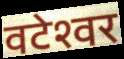
वटेश्वर